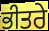
ਭੀਤਰੇ